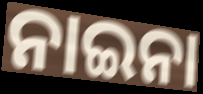
ନାଇନା